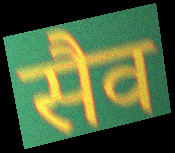
सैव